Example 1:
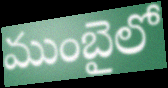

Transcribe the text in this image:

ముంబైలో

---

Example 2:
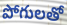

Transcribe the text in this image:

పోగులతో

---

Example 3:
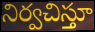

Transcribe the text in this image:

నిర్వచిస్తూ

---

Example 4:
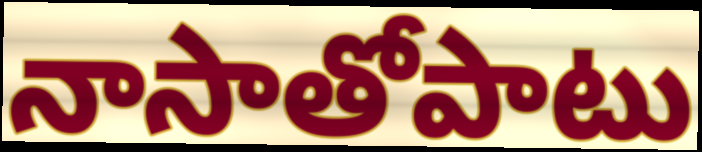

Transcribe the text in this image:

నాసాతోపాటు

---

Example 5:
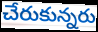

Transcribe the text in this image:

చేరుకున్నరు